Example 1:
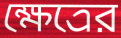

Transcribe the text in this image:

ক্ষেত্রের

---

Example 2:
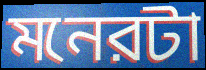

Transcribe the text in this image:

মনেরটা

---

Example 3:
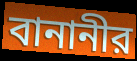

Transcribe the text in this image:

বানানীর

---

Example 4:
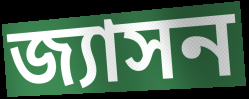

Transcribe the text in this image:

জ্যাসন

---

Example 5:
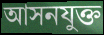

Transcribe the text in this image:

আসনযুক্ত